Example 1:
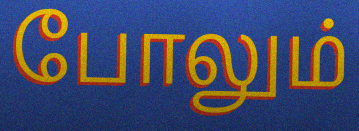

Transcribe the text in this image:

போலும்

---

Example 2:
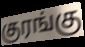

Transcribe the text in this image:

குரங்கு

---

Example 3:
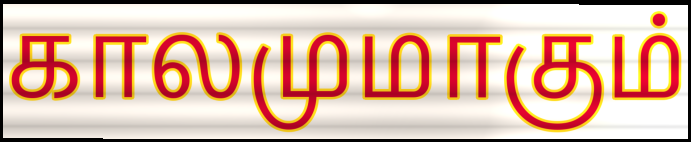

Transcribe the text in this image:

காலமுமாகும்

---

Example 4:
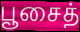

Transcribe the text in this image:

பூசைத்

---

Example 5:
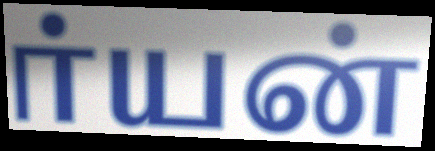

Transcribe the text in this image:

ர்யன்